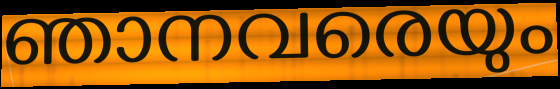
ഞാനവരെയും